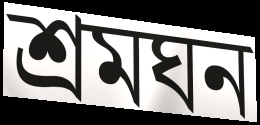
শ্রমঘন